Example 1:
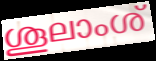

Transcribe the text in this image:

ശൂലാംശ്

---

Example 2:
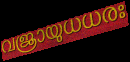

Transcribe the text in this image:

വജ്രായുധധരഃ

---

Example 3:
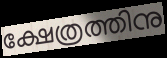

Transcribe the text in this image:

ക്ഷേത്രത്തിനു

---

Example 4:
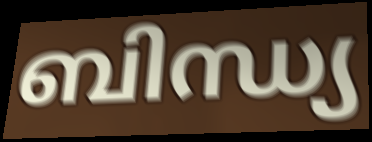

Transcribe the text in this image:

ബിന്ധ്യ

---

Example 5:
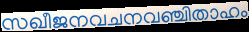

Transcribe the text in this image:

സഖീജനവചനവഞ്ചിതാഹം